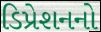
ડિપ્રેશનનો